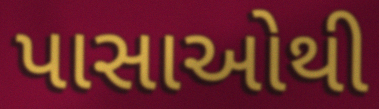
પાસાઓથી